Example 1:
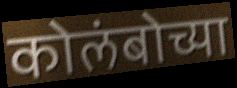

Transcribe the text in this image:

कोलंबोच्या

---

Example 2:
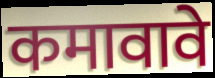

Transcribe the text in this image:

कमावावे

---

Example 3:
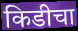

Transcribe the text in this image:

किडीचा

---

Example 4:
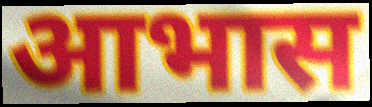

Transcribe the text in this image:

आभास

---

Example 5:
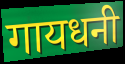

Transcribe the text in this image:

गायधनी